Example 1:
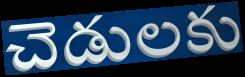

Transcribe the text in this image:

చెడులకు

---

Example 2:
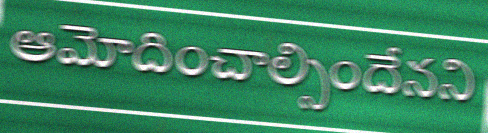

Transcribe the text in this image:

ఆమోదించాల్సిందేనని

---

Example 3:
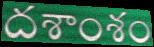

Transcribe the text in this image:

దశాంశం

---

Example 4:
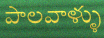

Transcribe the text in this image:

పాలవాళ్ళు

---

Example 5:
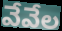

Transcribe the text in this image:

వేవేల